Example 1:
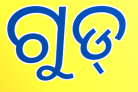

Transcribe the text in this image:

ଗୁଡ୍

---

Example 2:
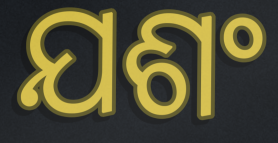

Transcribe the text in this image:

ଯଶଂ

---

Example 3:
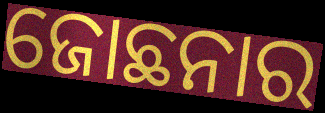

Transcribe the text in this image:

ଜୋଛନାର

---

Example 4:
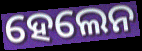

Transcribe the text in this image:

ହେଲେନ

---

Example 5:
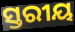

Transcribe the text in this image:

ସ୍ତରୀୟ